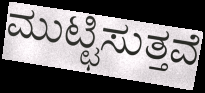
ಮುಟ್ಟಿಸುತ್ತವೆ